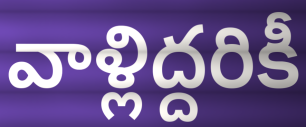
వాళ్లిద్దరికీ